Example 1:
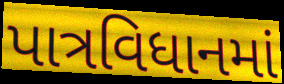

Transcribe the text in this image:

પાત્રવિધાનમાં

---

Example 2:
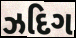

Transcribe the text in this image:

ઝદિગ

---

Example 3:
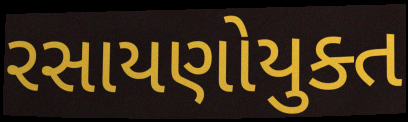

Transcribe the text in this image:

રસાયણોયુક્ત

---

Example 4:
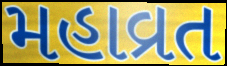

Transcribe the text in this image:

મહાવ્રત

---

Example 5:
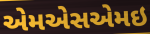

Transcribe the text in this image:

એમએસએમઇ